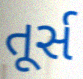
તૂર્સ